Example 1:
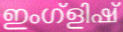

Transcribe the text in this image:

ഇംഗ്ളിഷ്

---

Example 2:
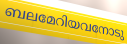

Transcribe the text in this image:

ബലമേറിയവനോടു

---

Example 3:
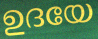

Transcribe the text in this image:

ഉദയേ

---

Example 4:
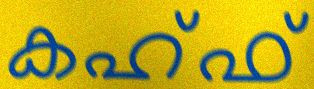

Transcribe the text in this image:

കഹ്ഫ്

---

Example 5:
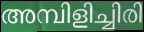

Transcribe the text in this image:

അമ്പിളിച്ചിരി